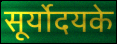
सूर्योदयके